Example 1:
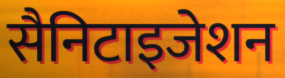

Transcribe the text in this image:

सैनिटाइजेशन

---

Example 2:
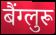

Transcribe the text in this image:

बैंग्लुरू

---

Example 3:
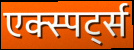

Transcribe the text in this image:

एक्स्पर्ट्स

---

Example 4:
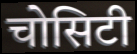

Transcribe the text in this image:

चोसिटी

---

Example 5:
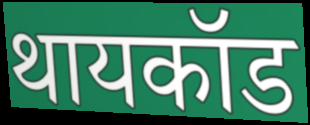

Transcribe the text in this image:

थायकॉड